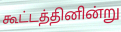
கூட்டத்தினின்று